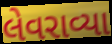
લેવરાવ્યા